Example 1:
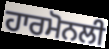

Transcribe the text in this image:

ਹਾਰਮੋਨਲੀ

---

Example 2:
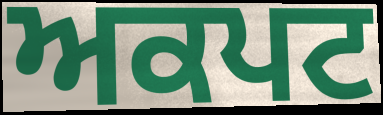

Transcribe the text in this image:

ਅਕਪਟ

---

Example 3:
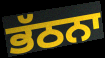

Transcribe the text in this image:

ਭੱਠਨਾ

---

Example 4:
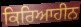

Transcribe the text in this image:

ਕਿਰਿਆਹੀਨ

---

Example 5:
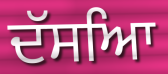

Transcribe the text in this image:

ਦੱਸਆਿ